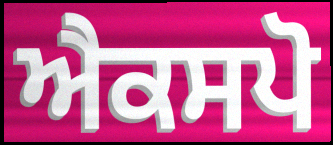
ਐਕਸਪੋ